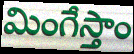
మింగేస్తాం